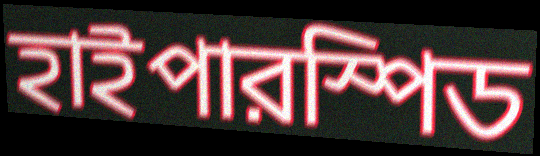
হাইপারস্পিড